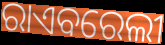
ରାଏବରେଲୀ